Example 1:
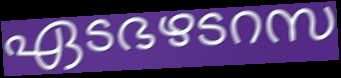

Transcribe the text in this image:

ഏടഭഴടറസ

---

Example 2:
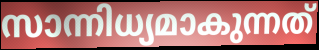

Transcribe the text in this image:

സാന്നിധ്യമാകുന്നത്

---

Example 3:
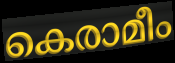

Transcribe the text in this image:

കെരാമീം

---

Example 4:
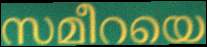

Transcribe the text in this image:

സമീറയെ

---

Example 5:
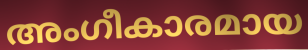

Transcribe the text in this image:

അംഗീകാരമായ